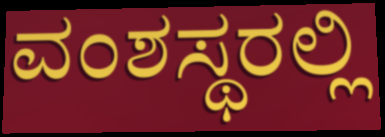
ವಂಶಸ್ಥರಲ್ಲಿ